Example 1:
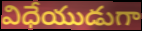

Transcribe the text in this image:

విధేయుడుగా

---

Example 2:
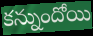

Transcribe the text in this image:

కన్నుందోయి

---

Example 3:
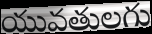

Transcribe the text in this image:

యువతులగు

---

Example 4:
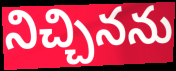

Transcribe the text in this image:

నిచ్చినను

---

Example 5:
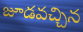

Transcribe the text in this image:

జూడవచ్చిన